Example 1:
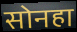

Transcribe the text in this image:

सोनहा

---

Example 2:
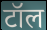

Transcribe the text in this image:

टॉल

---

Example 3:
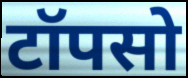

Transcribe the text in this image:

टॉपसो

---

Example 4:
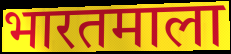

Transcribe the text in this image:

भारतमाला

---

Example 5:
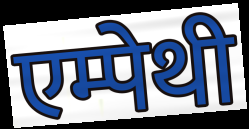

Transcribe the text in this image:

एम्पेथी